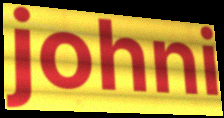
johni